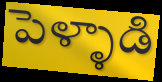
పెళ్ళాడి